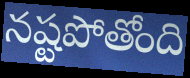
నష్టపోతోంది